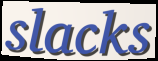
slacks